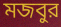
মজবুর